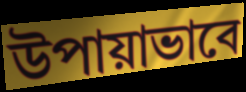
উপায়াভাবে